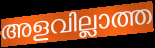
അളവില്ലാത്ത